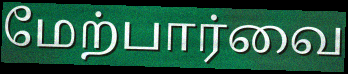
மேற்பார்வை